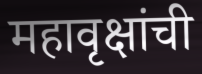
महावृक्षांची